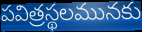
పవిత్రస్థలమునకు